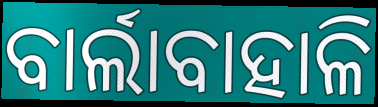
ବାର୍ଲାବାହାଳି